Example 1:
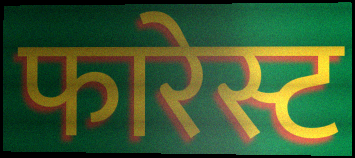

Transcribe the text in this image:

फारेस्ट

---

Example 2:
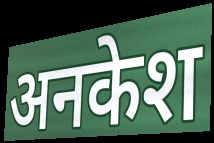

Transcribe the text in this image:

अनकेश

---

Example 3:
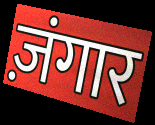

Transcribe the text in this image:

ज़ंगार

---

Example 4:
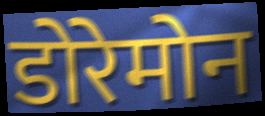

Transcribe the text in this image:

डोरेमोन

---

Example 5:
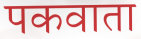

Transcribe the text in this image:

पकवाता